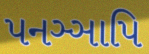
પનઞ્ઞાપિ